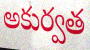
అకుర్వత